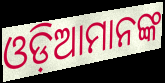
ଓଡ଼ିଆମାନଙ୍କ